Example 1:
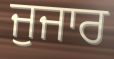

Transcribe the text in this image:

ਜੁਜਾਰ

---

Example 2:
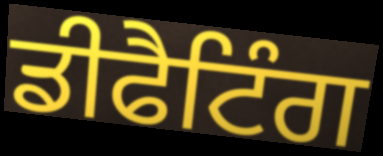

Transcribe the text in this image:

ਡੀਫੈਟਿੰਗ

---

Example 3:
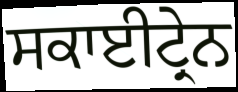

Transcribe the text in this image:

ਸਕਾਈਟ੍ਰੇਨ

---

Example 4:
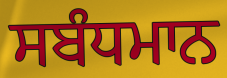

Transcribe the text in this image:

ਸਬੰਧਮਾਨ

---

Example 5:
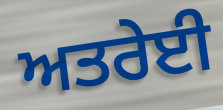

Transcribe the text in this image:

ਅਤਰੇਈ